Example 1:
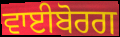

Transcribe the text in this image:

ਵਾਈਬੋਰਗ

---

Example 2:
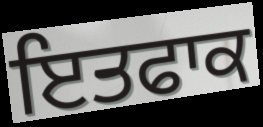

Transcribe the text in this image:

ਇਤਫਾਕ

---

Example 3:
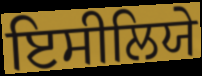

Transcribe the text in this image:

ਇਸੀਲਿਯੇ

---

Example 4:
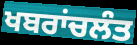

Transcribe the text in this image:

ਖਬਰਾਂਚਲੰਤ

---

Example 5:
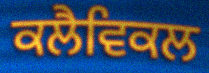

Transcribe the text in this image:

ਕਲੈਵਿਕਲ